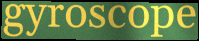
gyroscope